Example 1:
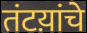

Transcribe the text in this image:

तंटय़ांचे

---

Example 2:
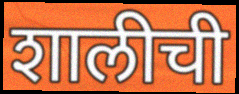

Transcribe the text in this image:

शालीची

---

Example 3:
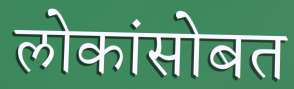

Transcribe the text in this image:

लोकांसोबत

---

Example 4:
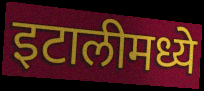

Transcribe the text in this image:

इटालीमध्ये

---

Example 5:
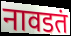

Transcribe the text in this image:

नावडतं